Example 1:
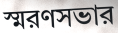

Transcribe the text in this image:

স্মরণসভার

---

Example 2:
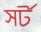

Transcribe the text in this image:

সর্ট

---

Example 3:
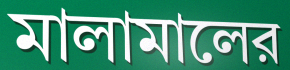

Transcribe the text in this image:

মালামালের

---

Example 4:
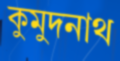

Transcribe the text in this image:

কুমুদনাথ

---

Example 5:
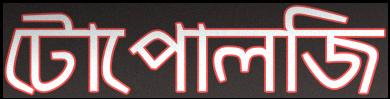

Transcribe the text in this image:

টোপোলজি